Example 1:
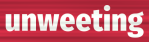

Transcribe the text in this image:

unweeting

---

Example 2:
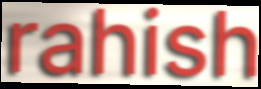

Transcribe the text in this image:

rahish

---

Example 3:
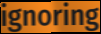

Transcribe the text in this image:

ignoring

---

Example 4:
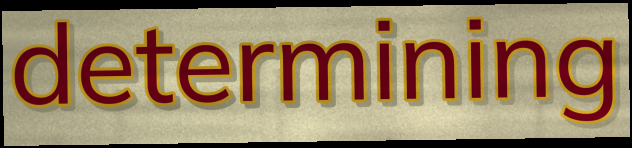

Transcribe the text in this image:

determining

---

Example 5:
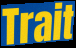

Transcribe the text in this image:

Trait